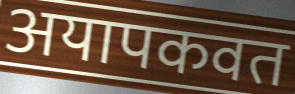
अयापकवत